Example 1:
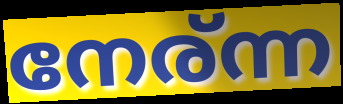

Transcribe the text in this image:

നേര്ന്ന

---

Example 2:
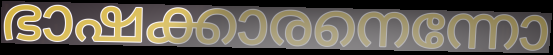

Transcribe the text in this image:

ഭാഷക്കാരനെന്നോ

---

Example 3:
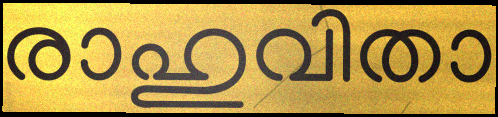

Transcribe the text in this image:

രാഹുവിതാ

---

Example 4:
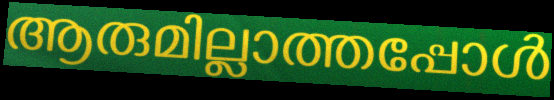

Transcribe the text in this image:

ആരുമില്ലാത്തപ്പോൾ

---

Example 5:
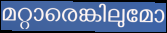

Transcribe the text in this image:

മറ്റാരെങ്കിലുമോ